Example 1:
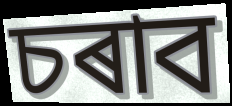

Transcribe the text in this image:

চৰাব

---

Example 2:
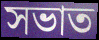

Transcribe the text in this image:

সভাত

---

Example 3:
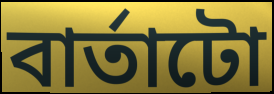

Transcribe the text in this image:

বাৰ্তাটো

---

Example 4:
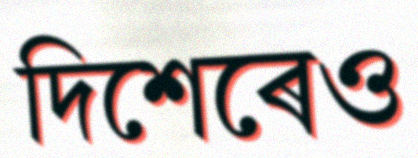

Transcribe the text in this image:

দিশেৰেও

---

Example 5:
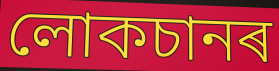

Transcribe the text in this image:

লোকচানৰ